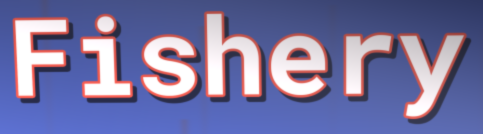
Fishery